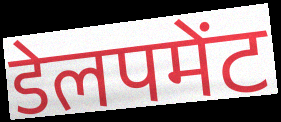
डेलपमेंट